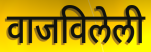
वाजविलेली